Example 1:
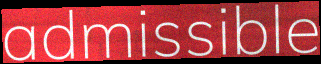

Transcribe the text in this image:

admissible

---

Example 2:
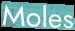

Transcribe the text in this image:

Moles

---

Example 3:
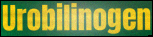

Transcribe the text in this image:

Urobilinogen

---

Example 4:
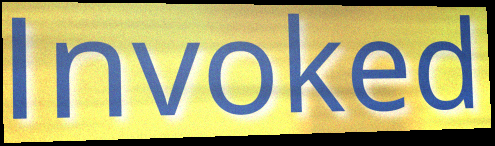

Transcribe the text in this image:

Invoked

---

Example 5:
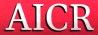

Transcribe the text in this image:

AICR